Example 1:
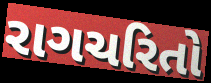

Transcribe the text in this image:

રાગચરિતો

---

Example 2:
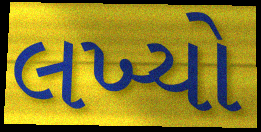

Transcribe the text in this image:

લખ્યો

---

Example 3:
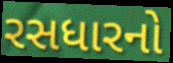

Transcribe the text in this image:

રસધારનો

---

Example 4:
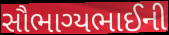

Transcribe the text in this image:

સૌભાગ્યભાઈની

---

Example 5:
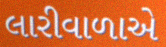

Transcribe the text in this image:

લારીવાળાએ